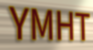
YMHT